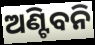
ଅଣ୍ଟିବନି